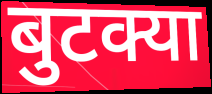
बुटक्या